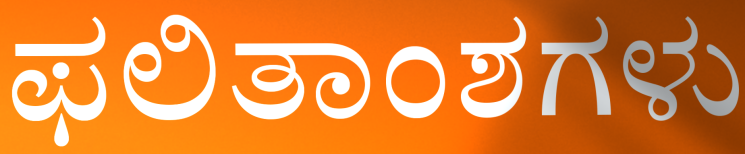
ಫಲಿತಾಂಶಗಳು